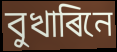
বুখাৰিনে